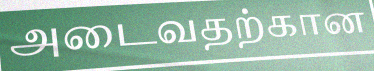
அடைவதற்கான